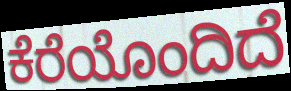
ಕೆರೆಯೊಂದಿದೆ